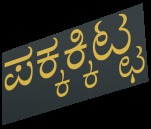
ಪಕ್ಕಕ್ಕಿಟ್ಟ